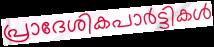
പ്രാദേശികപാർട്ടികൾ